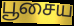
பூசைய